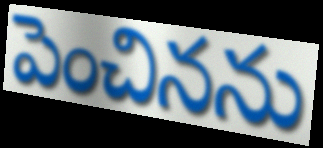
పెంచినను